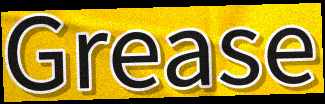
Grease